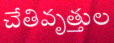
చేతివృత్తుల